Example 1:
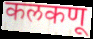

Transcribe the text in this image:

कलकणू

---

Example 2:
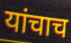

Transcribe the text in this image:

यांचाच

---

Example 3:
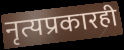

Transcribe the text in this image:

नृत्यप्रकारही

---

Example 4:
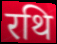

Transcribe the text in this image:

रथि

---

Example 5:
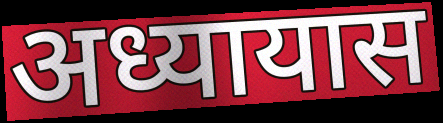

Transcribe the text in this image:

अध्यायास